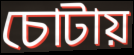
চোটায়